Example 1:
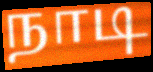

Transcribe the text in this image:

நாடி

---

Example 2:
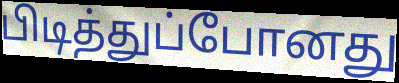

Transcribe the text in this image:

பிடித்துப்போனது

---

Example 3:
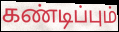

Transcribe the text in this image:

கண்டிப்பும்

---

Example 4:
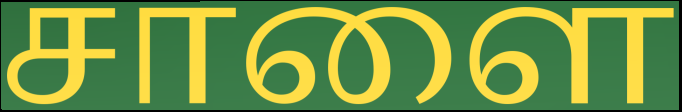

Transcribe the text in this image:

சாளை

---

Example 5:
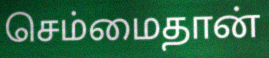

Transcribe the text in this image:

செம்மைதான்